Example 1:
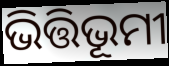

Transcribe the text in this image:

ଭିତ୍ତିଭୂମୀ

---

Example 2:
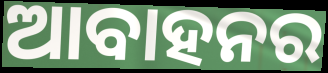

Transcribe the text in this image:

ଆବାହନର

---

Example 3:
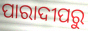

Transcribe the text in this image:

ପାରାଦୀପରୁ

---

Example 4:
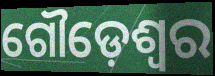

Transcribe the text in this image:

ଗୌଡ଼େଶ୍ୱର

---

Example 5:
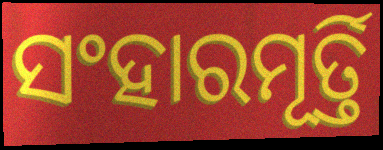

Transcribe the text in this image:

ସଂହାରମୂର୍ତ୍ତି